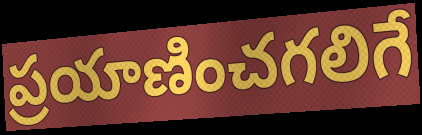
ప్రయాణించగలిగే